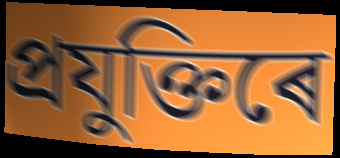
প্ৰযুক্তিৰে